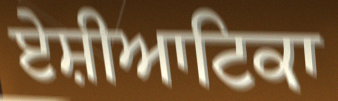
ਏਸ਼ੀਆਟਿਕਾ